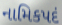
નામિકપદં